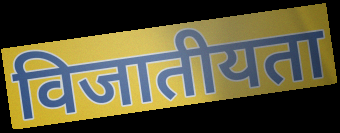
विजातीयता